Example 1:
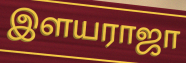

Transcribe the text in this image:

இளயராஜா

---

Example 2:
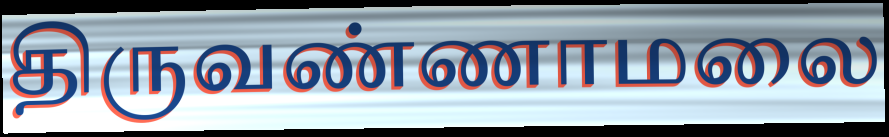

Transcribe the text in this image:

திருவண்ணாமலை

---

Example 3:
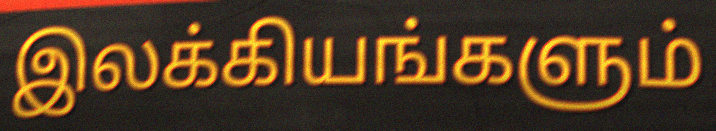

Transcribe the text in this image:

இலக்கியங்களும்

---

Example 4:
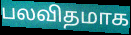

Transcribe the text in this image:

பலவிதமாக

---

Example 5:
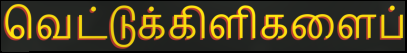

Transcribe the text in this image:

வெட்டுக்கிளிகளைப்